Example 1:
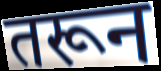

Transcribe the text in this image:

तरून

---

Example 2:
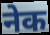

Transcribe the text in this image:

नेक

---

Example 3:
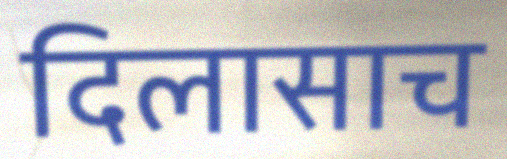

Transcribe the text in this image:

दिलासाच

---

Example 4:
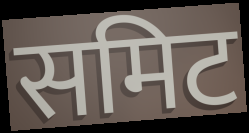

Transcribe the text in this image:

समिट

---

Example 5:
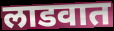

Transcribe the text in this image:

लाडवात